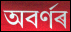
অবৰ্ণৰ